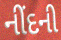
નીંદની